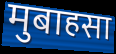
मुबाहसा